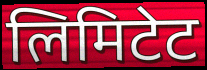
लिमिटेट